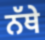
ਨੱਥੇ